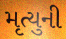
મૃત્યુની